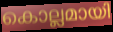
കൊല്ലമായി